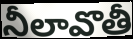
నీలావొతీ